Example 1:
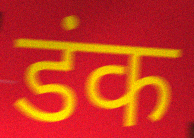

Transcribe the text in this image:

डंक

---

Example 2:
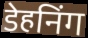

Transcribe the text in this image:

डेहनिंग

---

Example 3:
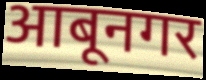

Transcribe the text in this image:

आबूनगर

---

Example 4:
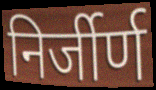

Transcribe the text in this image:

निर्जीर्ण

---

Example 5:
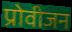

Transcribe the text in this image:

प्रोवीजन